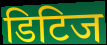
डिटिज